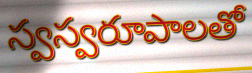
స్వస్వరూపాలతో